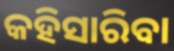
କହିସାରିବା